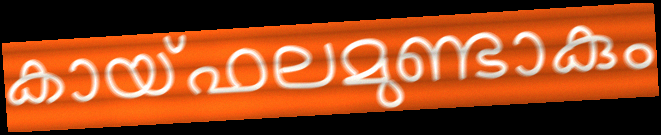
കായ്ഫലമുണ്ടാകും